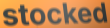
stocked